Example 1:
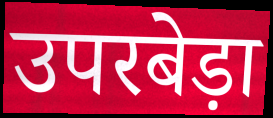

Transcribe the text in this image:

उपरबेड़ा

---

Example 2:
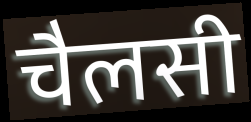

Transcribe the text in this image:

चैलसी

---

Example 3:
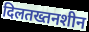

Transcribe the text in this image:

दिलतख्तनशीन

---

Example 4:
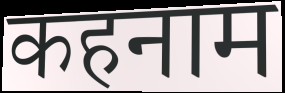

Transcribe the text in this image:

कहनाम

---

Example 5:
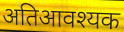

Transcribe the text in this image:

अतिआवश्यक